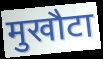
मुखौटा